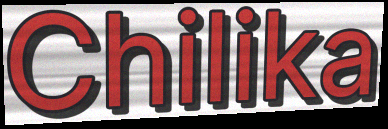
Chilika